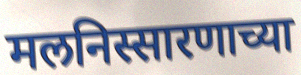
मलनिस्सारणाच्या